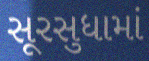
સૂરસુધામાં